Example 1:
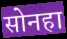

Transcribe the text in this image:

सोनहा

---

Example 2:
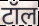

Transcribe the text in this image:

टॉल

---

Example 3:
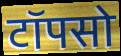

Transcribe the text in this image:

टॉपसो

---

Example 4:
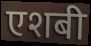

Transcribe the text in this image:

एशबी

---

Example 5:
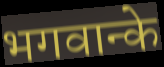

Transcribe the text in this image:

भगवान्के